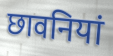
छावनियां